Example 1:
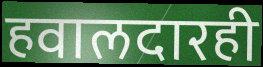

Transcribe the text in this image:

हवालदारही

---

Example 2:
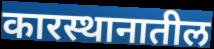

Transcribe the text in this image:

कारस्थानातील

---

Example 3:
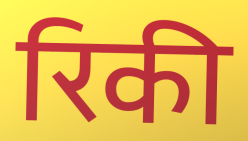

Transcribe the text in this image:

रिकी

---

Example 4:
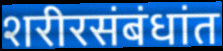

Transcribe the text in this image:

शरीरसंबंधांत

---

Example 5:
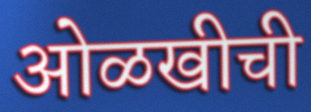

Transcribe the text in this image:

ओळखीची